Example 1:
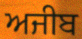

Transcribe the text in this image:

ਅਜੀਬ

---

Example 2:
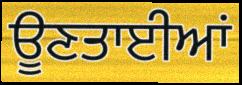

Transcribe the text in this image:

ਊਣਤਾਈਆਂ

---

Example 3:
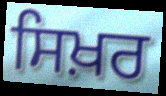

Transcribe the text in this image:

ਸਿਖ਼ਰ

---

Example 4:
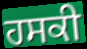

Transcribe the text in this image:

ਹਸਕੀ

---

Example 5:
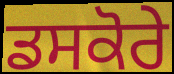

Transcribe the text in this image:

ਡਸਕੋਰੇ